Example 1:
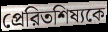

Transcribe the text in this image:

প্রেরিতশিষ্যকে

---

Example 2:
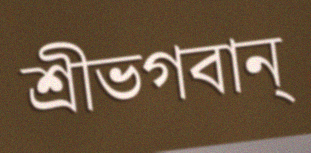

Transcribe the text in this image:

শ্রীভগবান্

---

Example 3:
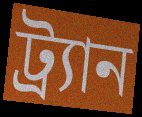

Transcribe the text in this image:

ট্র্যান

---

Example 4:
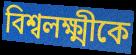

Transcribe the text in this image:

বিশ্বলক্ষ্মীকে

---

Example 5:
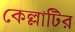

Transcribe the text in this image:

কেল্লাটির